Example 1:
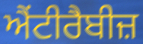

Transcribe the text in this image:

ਐਂਟੀਰੈਬੀਜ਼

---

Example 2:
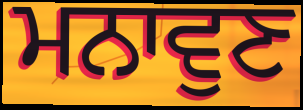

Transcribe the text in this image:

ਮਨਾਵੁਣ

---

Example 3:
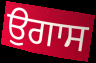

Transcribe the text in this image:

ਉਗਾਸ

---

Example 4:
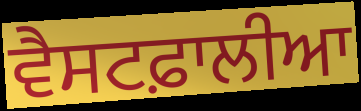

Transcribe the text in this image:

ਵੈਸਟਫ਼ਾਲੀਆ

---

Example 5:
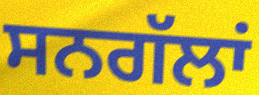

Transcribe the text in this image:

ਸਨਗੱਲਾਂ